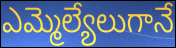
ఎమ్మెల్యేలుగానే